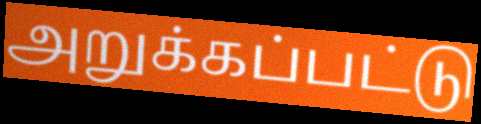
அறுக்கப்பட்டு